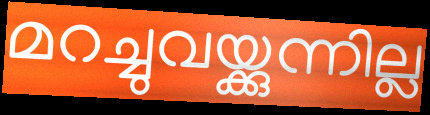
മറച്ചുവയ്ക്കുന്നില്ല